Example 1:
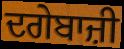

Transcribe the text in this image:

ਦਗੇਬਾਜ਼ੀ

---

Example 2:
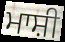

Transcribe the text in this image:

ਮਾਸ਼ੀ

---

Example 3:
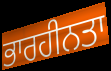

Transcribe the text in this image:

ਭਾਰਹੀਨਤਾ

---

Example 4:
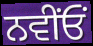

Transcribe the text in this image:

ਨਵੀਂਓਂ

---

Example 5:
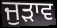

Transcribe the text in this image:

ਜੁੜਾਵ